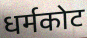
धर्मकोट